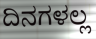
ದಿನಗಳಲ್ಲ